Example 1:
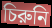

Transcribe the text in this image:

চিরুনি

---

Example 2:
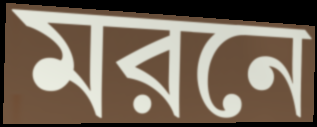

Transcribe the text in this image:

মরনে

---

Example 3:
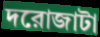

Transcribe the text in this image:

দরোজাটা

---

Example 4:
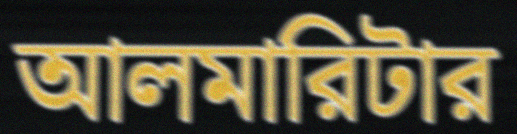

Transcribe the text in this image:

আলমারিটার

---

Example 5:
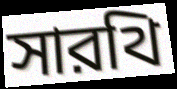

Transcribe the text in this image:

সারথি